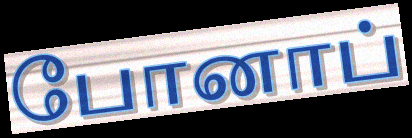
போனாப்